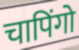
चापिंगो